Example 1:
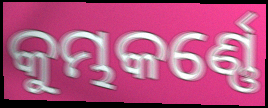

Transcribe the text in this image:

କୁମ୍ଭକର୍ଣ୍ଣେ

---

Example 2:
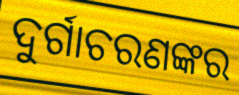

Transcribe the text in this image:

ଦୁର୍ଗାଚରଣଙ୍କର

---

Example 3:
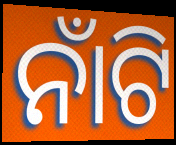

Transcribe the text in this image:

ନାଁଟି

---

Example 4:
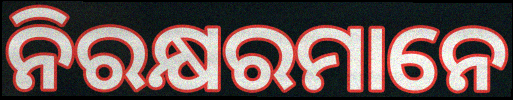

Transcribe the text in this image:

ନିରକ୍ଷରମାନେ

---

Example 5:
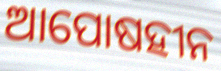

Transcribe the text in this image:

ଆପୋଷହୀନ